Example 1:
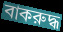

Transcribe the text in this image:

বাকরুদ্ধ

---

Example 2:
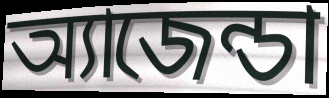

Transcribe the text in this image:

অ্যাজেন্ডা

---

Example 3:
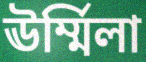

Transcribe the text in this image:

ঊর্ম্মিলা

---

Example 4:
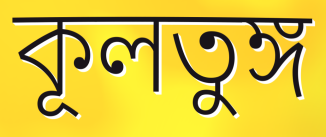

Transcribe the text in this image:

কূলতুঙ্গ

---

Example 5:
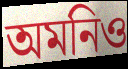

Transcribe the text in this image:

অমনিও